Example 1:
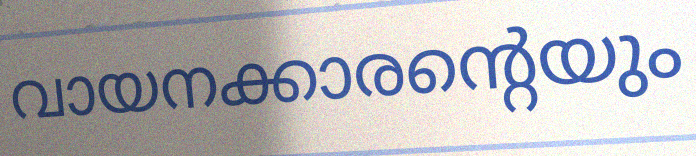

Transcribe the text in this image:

വായനക്കാരന്റെയും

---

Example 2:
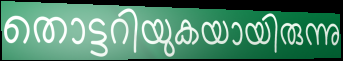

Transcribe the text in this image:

തൊട്ടറിയുകയായിരുന്നു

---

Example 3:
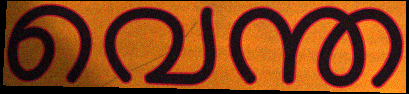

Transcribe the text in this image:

വെന്ത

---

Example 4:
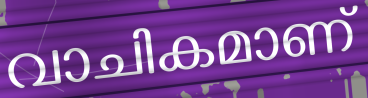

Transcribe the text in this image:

വാചികമാണ്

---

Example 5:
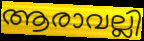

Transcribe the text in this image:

ആരാവല്ലി